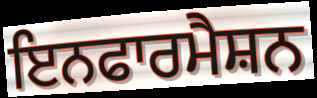
ਇਨਫਾਰਮੈਸ਼ਨ